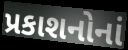
પ્રકાશનોનાં